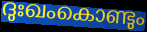
ദുഃഖംകൊണ്ടും